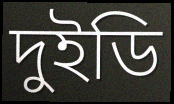
দুইডি